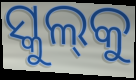
ସ୍କୁଲ୍‌କୁ